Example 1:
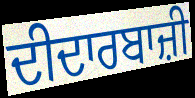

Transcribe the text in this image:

ਦੀਦਾਰਬਾਜ਼ੀ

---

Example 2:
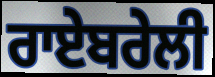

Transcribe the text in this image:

ਰਾਏਬਰੇਲੀ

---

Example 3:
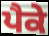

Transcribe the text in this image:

ਪੈਕੇ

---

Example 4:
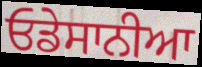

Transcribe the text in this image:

ਓਡੇਸਾਨੀਆ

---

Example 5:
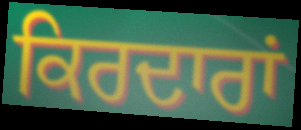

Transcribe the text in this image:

ਕਿਰਦਾਰਾਂ